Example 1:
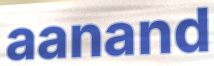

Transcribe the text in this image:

aanand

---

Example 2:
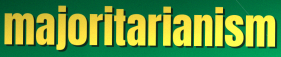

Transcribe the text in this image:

majoritarianism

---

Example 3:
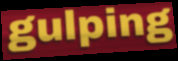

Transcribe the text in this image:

gulping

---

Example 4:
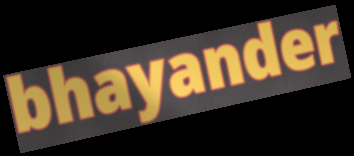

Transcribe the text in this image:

bhayander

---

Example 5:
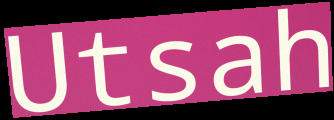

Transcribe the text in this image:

Utsah